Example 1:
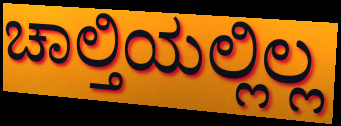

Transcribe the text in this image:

ಚಾಲ್ತಿಯಲ್ಲಿಲ್ಲ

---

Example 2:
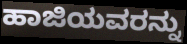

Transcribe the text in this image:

ಹಾಜಿಯವರನ್ನು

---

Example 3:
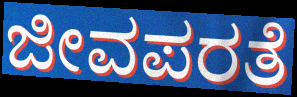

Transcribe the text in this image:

ಜೀವಪರತೆ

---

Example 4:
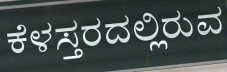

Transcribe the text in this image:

ಕೆಳಸ್ತರದಲ್ಲಿರುವ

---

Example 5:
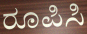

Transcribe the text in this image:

ರೂಪಿಸಿ